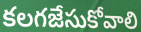
కలగజేసుకోవాలి